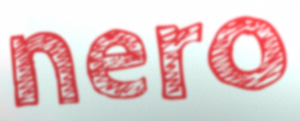
nero